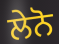
ਲੇਨੋ